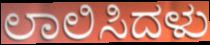
ಲಾಲಿಸಿದಳು